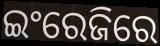
ଇଂରେଜିରେ